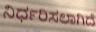
ನಿರ್ಧರಿಸಲಾಗಿದೆ